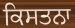
ਕਿਸਤਨਾ